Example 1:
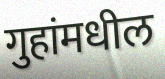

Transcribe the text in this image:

गुहांमधील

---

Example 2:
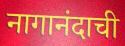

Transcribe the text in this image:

नागानंदाची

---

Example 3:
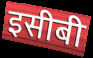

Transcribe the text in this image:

इसीबी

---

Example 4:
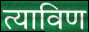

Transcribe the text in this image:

त्याविण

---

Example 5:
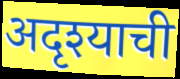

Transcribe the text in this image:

अदृश्याची